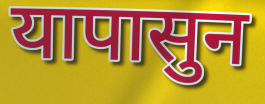
यापासुन